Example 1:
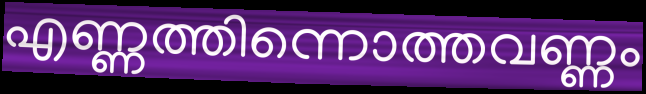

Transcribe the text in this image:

എണ്ണത്തിന്നൊത്തവണ്ണം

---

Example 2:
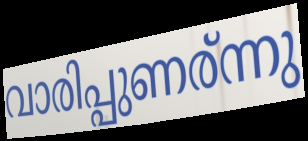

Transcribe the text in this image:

വാരിപ്പുണര്ന്നു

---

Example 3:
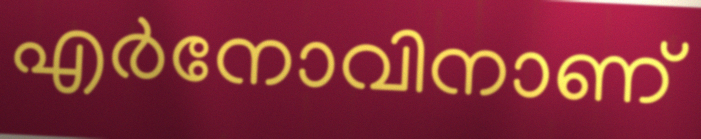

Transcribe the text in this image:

എർനോവിനാണ്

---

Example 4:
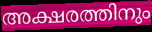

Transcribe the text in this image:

അക്ഷരത്തിനും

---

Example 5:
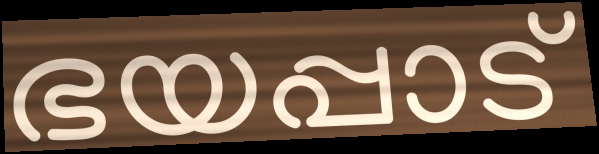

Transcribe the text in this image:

ഭയപ്പാട്